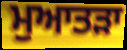
ਮੁਆਤੜਾ